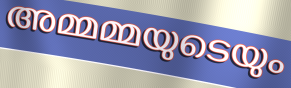
അമ്മമ്മയുടെയും